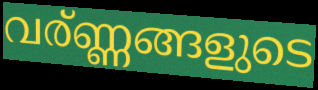
വര്ണ്ണങ്ങളുടെ